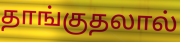
தாங்குதலால்